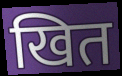
खित